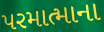
પરમાત્માના